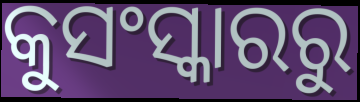
କୁସଂସ୍କାରରୁ